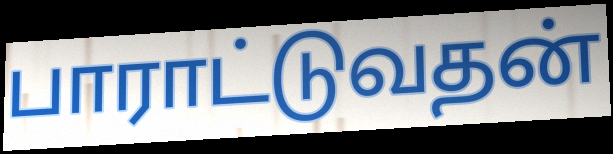
பாராட்டுவதன்